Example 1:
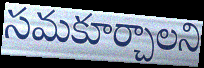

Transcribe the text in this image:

సమకూర్చాలని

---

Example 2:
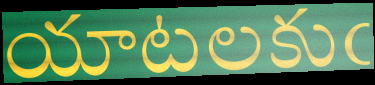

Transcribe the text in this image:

యాటలకుఁ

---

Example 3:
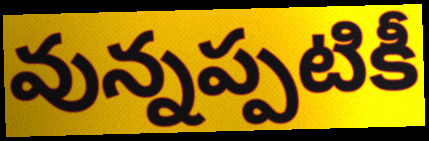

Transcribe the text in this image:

వున్నప్పటికీ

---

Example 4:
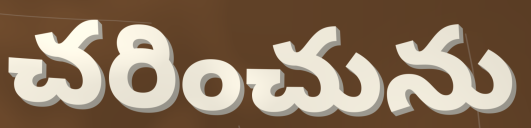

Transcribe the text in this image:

చరించును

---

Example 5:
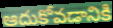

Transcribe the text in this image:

ఆదుకోవడానికి